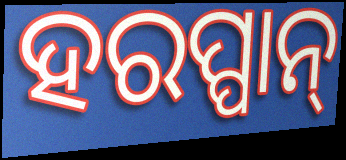
ହରପ୍ପାନ୍